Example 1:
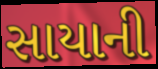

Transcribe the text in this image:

સાયાની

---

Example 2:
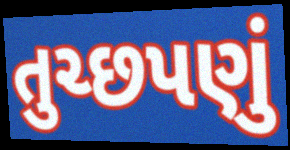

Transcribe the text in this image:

તુચ્છપણું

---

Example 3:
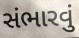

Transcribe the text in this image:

સંભારવું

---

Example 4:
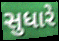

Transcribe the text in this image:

સુધારે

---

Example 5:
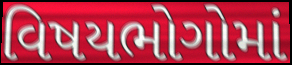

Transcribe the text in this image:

વિષયભોગોમાં